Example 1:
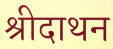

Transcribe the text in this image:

श्रीदाथन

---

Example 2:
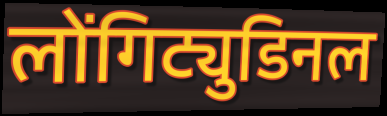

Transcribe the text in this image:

लोंगिट्युडिनल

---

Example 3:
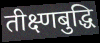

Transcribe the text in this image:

तीक्ष्णबुद्धि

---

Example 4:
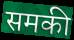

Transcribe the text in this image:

समकी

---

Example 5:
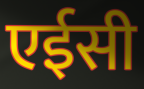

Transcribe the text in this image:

एईसी